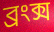
ব্রংক্স